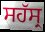
ਸਹੱਸ੍ਰ